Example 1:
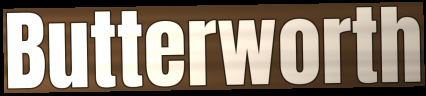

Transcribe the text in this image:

Butterworth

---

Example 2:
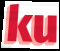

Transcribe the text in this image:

ku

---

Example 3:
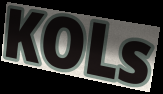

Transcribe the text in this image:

KOLs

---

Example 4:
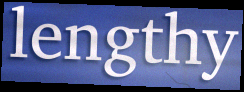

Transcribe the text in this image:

lengthy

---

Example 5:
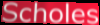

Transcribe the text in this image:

Scholes